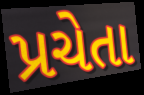
પ્રચેતા